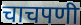
चाचपणी